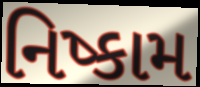
નિષ્કામ